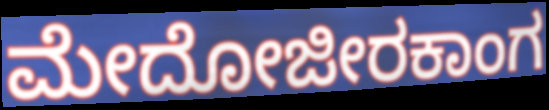
ಮೇದೋಜೀರಕಾಂಗ